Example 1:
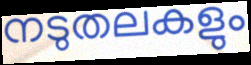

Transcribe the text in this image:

നടുതലകളും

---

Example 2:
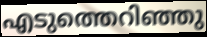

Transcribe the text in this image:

എടുത്തെറിഞ്ഞു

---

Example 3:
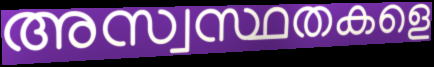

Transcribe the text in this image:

അസ്വസ്ഥതകളെ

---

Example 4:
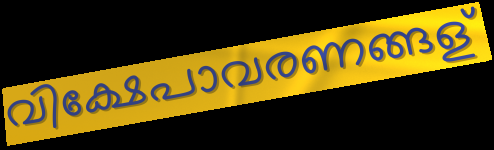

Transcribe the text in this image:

വിക്ഷേപാവരണങ്ങള്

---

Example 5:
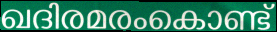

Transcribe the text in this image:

ഖദിരമരംകൊണ്ട്